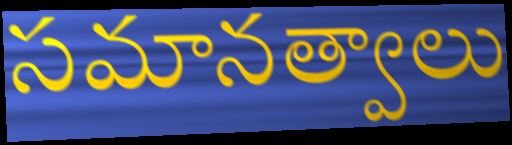
సమానత్వాలు